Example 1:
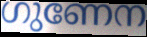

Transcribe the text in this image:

ഗുണേന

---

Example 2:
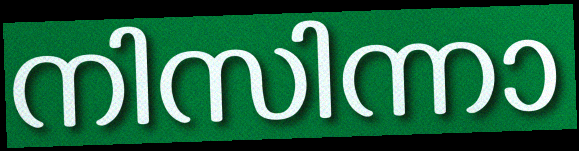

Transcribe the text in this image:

നിസിന്നാ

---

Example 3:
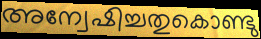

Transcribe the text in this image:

അന്വേഷിച്ചതുകൊണ്ടു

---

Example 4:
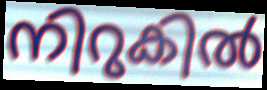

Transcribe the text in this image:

നിറുകിൽ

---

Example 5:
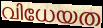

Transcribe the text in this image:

വിധേയത